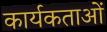
कार्यकताओं